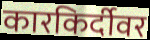
कारकिर्दीवर